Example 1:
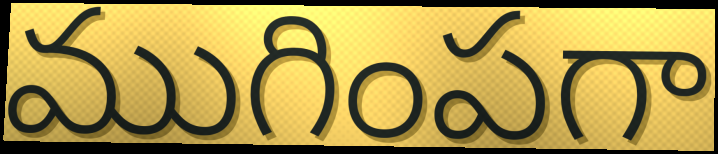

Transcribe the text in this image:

ముగింపగా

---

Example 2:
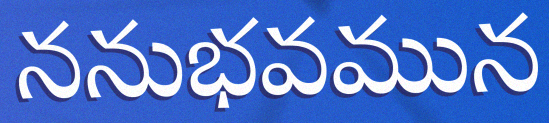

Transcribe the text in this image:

ననుభవమున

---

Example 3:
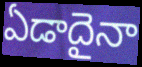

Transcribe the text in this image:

ఏడాదైనా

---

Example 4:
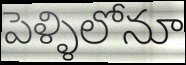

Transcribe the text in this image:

పెళ్ళిలోనూ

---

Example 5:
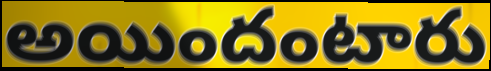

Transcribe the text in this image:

అయిందంటారు